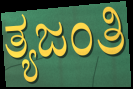
ತ್ಯಜಂತಿ